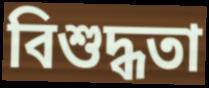
বিশুদ্ধতা